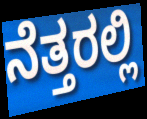
ನೆತ್ತರಲ್ಲಿ